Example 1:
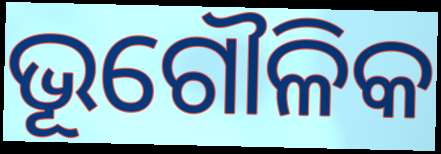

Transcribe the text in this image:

ଭୂଗୌଳିକ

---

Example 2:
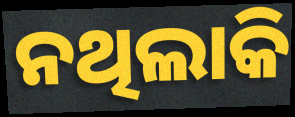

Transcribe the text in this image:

ନଥିଲାକି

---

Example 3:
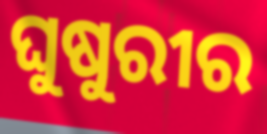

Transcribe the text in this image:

ଘୁଷୁରୀର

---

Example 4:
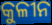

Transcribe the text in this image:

କୁଳୀନ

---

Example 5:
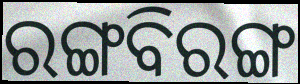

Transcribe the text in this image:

ରଙ୍ଗବିରଙ୍ଗ